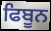
ਫਿਬੂਨ